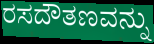
ರಸದೌತಣವನ್ನು